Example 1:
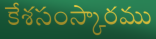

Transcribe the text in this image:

కేశసంస్కారము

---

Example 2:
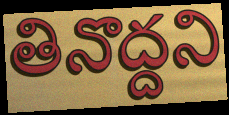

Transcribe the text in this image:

తినొద్దని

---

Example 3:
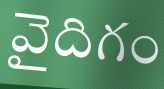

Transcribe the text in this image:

వైదిగం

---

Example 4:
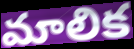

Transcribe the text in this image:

మాలిక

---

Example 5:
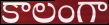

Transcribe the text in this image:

కాలంగా